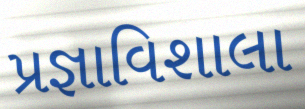
પ્રજ્ઞાવિશાલા